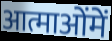
आत्माओंमें